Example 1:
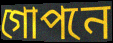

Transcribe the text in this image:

গোপনে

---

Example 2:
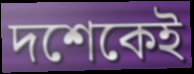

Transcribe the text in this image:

দশেকেই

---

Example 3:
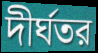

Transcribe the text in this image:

দীর্ঘতর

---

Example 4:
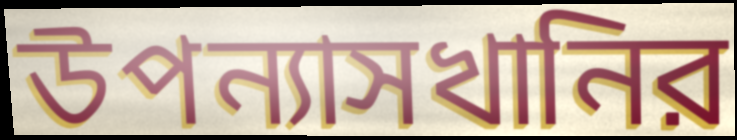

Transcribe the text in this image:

উপন্যাসখানির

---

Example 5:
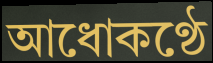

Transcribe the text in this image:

আধোকণ্ঠে